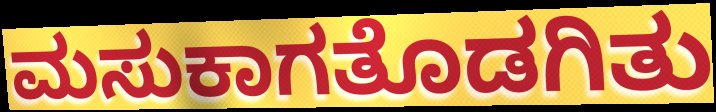
ಮಸುಕಾಗತೊಡಗಿತು